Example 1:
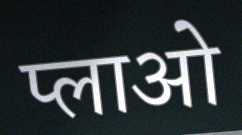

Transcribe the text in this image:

प्लाओ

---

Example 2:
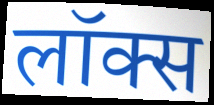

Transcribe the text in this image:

लॉक्स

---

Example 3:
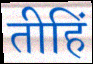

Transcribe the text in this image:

तीहिं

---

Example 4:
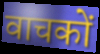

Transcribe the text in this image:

वाचकों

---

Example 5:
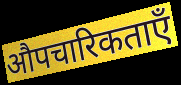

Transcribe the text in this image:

औपचारिकताएँ